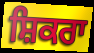
ਸ਼ਿਕਰਾ